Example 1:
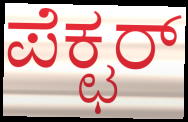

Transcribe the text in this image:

ಪೆಕ್ಟರ್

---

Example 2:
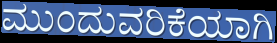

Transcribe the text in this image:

ಮುಂದುವರಿಕೆಯಾಗಿ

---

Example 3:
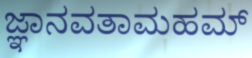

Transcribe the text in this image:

ಜ್ಞಾನವತಾಮಹಮ್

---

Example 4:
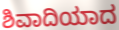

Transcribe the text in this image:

ಶಿವಾದಿಯಾದ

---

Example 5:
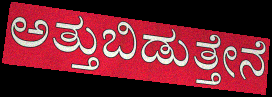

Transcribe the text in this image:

ಅತ್ತುಬಿಡುತ್ತೇನೆ